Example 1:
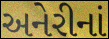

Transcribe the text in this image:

અનેરીનાં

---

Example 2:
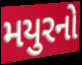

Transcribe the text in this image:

મયુરનો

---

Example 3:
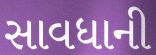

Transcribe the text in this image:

સાવધાની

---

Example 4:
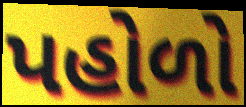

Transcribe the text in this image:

પહોળો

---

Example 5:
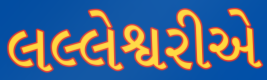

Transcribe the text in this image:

લલ્લેશ્વરીએ